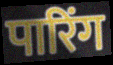
पारिंग